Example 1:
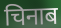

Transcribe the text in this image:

चिनाब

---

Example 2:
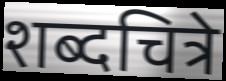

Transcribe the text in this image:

शब्दचित्रे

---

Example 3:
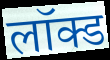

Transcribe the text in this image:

लॉक्ड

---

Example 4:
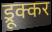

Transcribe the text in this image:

ड्रूक्कर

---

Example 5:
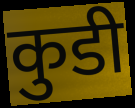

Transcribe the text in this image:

कुडी